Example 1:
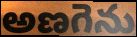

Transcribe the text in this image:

అణగెను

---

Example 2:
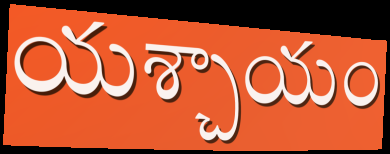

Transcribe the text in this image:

యశ్చాయం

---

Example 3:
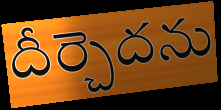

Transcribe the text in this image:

దీర్చెదను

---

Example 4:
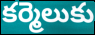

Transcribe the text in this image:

కర్మెలుకు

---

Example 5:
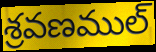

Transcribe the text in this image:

శ్రవణముల్